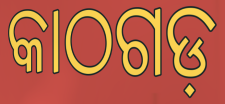
କାଠଗଡ଼